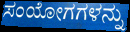
ಸಂಯೋಗಗಳನ್ನು